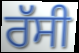
ਰੱਸੀ